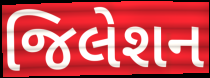
જિલેશન